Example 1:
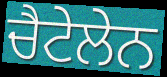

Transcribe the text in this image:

ਚੈਟੇਲੇਨ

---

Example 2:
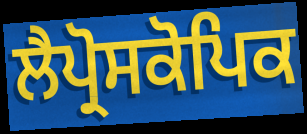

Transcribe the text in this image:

ਲੈਪ੍ਰੋਸਕੋਪਿਕ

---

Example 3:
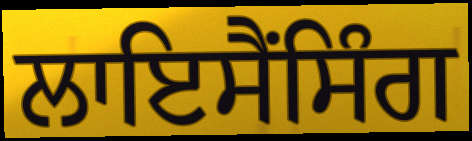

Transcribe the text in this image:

ਲਾਇਸੈਂਸਿੰਗ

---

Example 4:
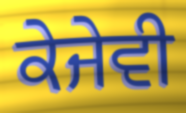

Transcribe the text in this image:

ਕੇਜੇਵੀ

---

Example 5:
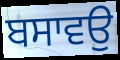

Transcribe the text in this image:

ਬਸਾਵਉ